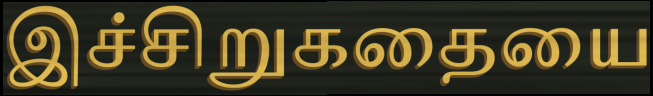
இச்சிறுகதையை